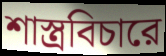
শাস্ত্রবিচারে